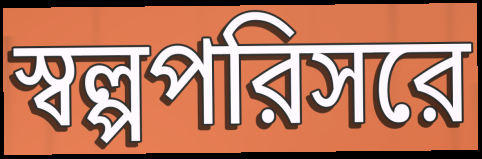
স্বল্পপরিসরে